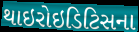
થાઇરોઇડિટિસના